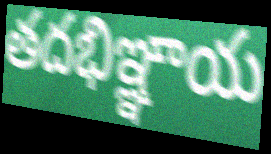
తదభిఞ్ఞాయ